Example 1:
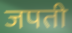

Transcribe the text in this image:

जपती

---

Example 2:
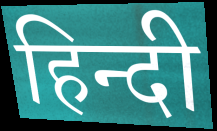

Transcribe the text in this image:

हिन्दी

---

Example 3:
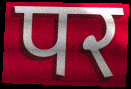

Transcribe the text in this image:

पर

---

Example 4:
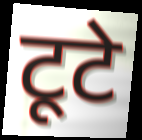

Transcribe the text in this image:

टूटे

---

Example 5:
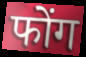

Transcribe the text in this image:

फोंग